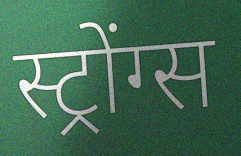
स्ट्रोंग्स